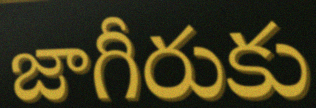
జాగీరుకు